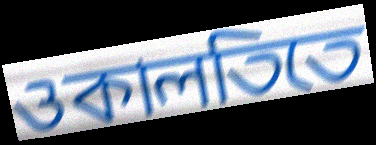
ওকালতিতে